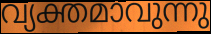
വ്യക്തമാവുന്നു